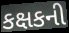
કક્ષકની